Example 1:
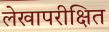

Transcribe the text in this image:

लेखापरीक्षित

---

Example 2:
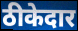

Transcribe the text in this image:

ठीकेदार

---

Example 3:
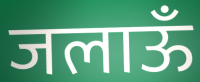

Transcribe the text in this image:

जलाऊँ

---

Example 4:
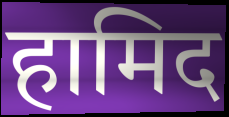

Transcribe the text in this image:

हामिद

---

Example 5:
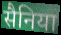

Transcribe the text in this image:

सैनिया